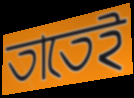
তাতেই